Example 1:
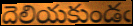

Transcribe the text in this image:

దెలియకుండఁ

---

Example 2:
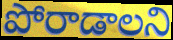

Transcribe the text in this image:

పోరాడాలని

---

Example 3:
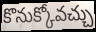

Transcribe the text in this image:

కొనుక్కోవచ్చు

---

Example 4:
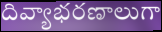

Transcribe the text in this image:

దివ్యాభరణాలుగా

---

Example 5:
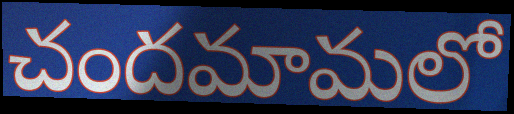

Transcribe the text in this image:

చందమామలో